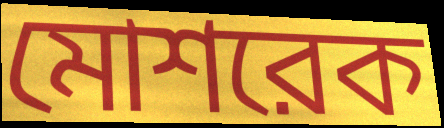
মোশরেক